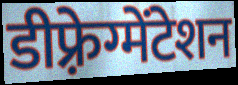
डीफ़्रेग्मेंटेशन